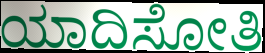
ಯಾದಿಸೋತಿ